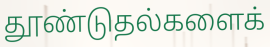
தூண்டுதல்களைக்